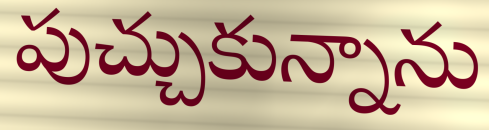
పుచ్చుకున్నాను